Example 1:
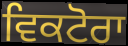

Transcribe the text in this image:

ਵਿਕਟੋਰਾ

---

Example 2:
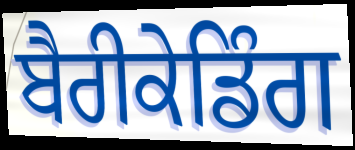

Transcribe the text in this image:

ਬੈਰੀਕੇਡਿੰਗ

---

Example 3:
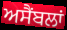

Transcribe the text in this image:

ਅਸੈਂਬਲਾਂ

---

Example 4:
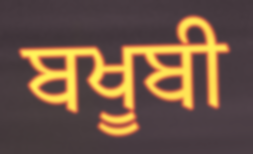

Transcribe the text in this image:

ਬਖੂਬੀ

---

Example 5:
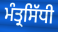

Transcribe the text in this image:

ਮੰਤ੍ਰਸਿੱਧੀ